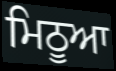
ਮਿਠੂਆ